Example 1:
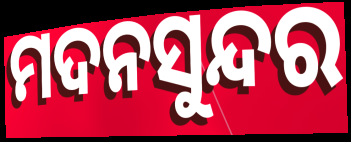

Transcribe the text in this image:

ମଦନସୁନ୍ଦର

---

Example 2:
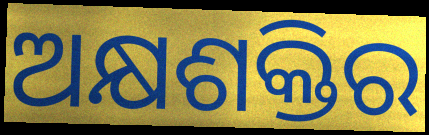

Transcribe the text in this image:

ଅକ୍ଷଶକ୍ତିର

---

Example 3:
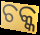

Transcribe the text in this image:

ଚକ୍କ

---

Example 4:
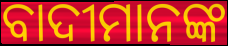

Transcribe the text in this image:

ବାଦୀମାନଙ୍କ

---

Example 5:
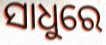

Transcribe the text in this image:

ସାଧୁରେ